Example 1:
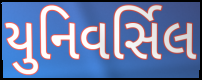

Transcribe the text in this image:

યુનિવર્સિલ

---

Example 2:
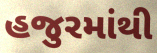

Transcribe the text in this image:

હજુરમાંથી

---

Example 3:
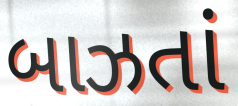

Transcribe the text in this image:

બાઝતાં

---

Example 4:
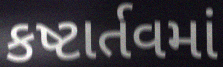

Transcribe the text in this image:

કષ્ટાર્તવમાં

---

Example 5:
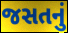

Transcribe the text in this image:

જસતનું